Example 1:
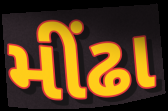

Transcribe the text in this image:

મીંઢા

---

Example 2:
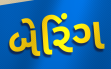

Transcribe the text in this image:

બેરિંગ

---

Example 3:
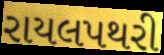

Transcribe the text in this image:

રાયલપથરી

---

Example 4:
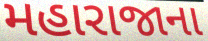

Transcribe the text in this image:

મહારાજાના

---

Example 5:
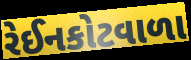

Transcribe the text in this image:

રેઈનકોટવાળા